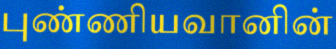
புண்ணியவானின்